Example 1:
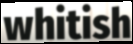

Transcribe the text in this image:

whitish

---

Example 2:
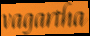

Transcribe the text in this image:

vagartha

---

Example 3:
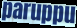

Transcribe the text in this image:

paruppu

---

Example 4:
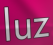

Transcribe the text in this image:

luz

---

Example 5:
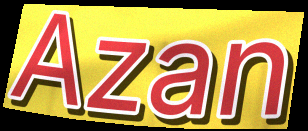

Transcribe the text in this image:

Azan